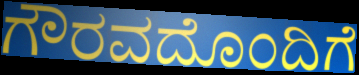
ಗೌರವದೊಂದಿಗೆ